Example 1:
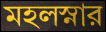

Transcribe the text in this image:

মহলস্নার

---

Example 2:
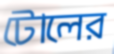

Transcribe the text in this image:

টোলের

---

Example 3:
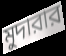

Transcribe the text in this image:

মুদারার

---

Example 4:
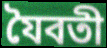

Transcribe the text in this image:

যৈবতী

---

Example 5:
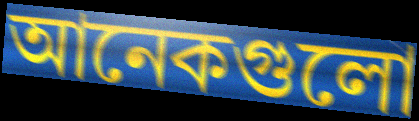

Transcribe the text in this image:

আনেকগুলো